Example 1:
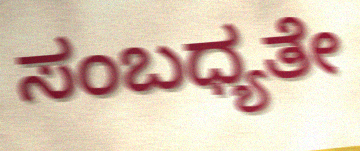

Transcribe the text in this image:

ಸಂಬಧ್ಯತೇ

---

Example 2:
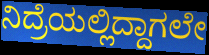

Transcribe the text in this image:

ನಿದ್ರೆಯಲ್ಲಿದ್ದಾಗಲೇ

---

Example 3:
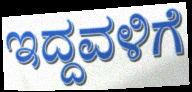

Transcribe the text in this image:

ಇದ್ದವಳಿಗೆ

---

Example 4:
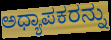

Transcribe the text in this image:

ಅಧ್ಯಾಪಕರನ್ನು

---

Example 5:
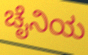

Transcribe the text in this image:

ಚೈನಿಯ